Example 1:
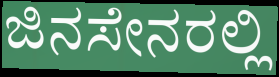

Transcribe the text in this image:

ಜಿನಸೇನರಲ್ಲಿ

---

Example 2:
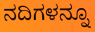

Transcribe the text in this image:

ನದಿಗಳನ್ನೂ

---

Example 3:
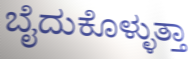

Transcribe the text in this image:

ಬೈದುಕೊಳ್ಳುತ್ತಾ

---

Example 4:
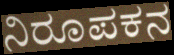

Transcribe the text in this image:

ನಿರೂಪಕನ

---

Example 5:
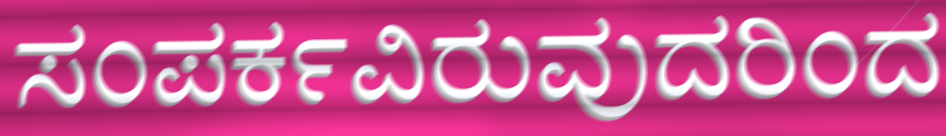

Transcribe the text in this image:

ಸಂಪರ್ಕವಿರುವುದರಿಂದ